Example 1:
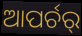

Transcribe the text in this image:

ଆପର୍ଚର୍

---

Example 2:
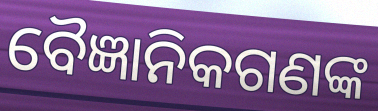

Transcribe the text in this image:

ବୈଜ୍ଞାନିକଗଣଙ୍କ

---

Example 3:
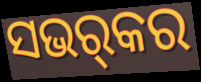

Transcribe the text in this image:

ସଭର୍‌କର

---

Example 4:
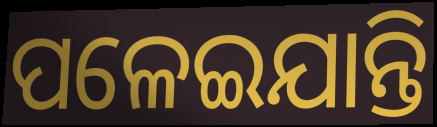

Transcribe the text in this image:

ପଳେଇଯାନ୍ତି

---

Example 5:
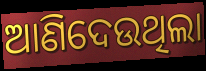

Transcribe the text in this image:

ଆଣିଦେଉଥିଲା